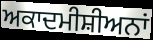
ਅਕਾਦਮੀਸ਼ੀਅਨਾਂ